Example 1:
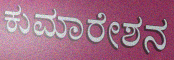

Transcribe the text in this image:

ಕುಮಾರೇಶನ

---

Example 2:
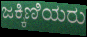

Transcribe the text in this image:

ಜಕ್ಕಿಣಿಯರು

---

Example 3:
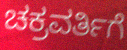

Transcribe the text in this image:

ಚಕ್ರವರ್ತಿಗೆ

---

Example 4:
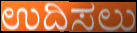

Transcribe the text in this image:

ಉದಿಸಲು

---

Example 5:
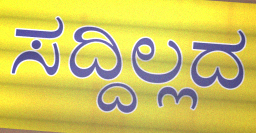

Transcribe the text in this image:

ಸದ್ದಿಲ್ಲದ